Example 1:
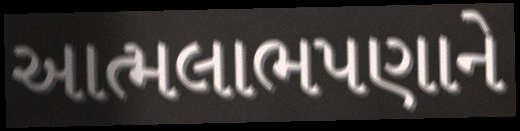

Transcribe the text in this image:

આત્મલાભપણાને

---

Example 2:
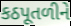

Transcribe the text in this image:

કઠપૂતળીને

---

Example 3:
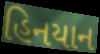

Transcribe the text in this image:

હિનયાન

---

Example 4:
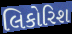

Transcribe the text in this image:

લિકોરિશ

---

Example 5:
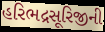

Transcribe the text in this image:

હરિભદ્રસૂરિજીની